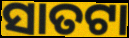
ସାତଟା